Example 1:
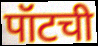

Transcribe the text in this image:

पॉटची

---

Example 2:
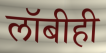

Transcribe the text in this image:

लॉबीही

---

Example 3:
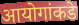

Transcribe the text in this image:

आयोगांकडे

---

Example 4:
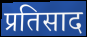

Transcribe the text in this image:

प्रतिसाद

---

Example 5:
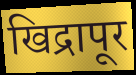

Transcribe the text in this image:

खिद्रापूर